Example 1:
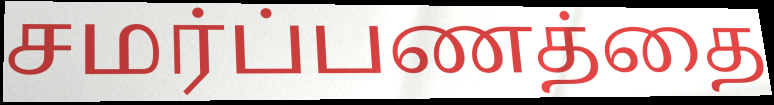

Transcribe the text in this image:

சமர்ப்பணத்தை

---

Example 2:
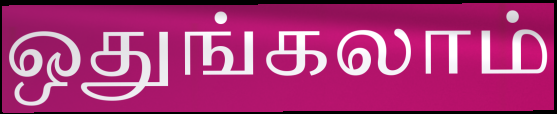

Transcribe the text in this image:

ஒதுங்கலாம்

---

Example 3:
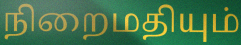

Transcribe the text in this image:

நிறைமதியும்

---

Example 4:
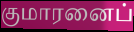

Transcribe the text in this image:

குமாரனைப்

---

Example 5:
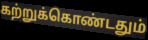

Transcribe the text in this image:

கற்றுக்கொண்டதும்